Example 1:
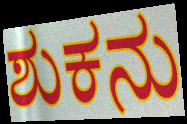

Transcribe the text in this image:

ಶುಕನು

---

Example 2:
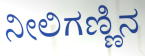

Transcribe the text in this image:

ನೀಲಿಗಣ್ಣಿನ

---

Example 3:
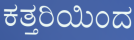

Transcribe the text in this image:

ಕತ್ತರಿಯಿಂದ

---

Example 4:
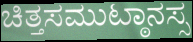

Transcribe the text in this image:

ಚಿತ್ತಸಮುಟ್ಠಾನಸ್ಸ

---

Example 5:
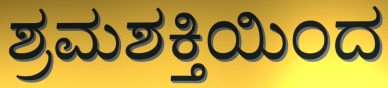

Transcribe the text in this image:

ಶ್ರಮಶಕ್ತಿಯಿಂದ